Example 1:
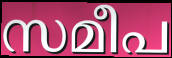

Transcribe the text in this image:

സമീപ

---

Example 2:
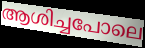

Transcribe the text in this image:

ആശിച്ചപോലെ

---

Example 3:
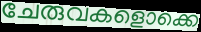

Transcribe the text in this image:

ചേരുവകളൊക്കെ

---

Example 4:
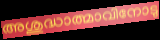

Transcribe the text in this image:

അശുദ്ധാത്മാവിനോടു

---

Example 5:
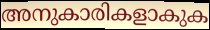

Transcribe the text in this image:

അനുകാരികളാകുക